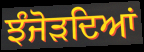
ਝੰਜੋੜਦਿਆਂ